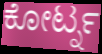
ಕೋರ್ಟ್ನ